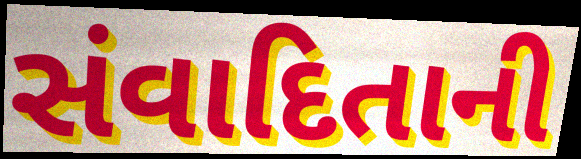
સંવાદિતાની